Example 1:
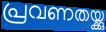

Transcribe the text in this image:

പ്രവണതയ്ക്കു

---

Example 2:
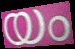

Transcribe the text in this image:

യം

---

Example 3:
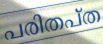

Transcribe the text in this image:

പരിതപ്ത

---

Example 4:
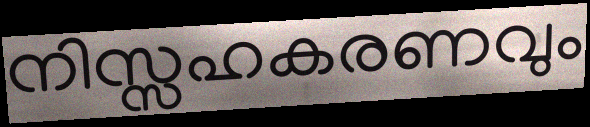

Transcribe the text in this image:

നിസ്സഹകരണവും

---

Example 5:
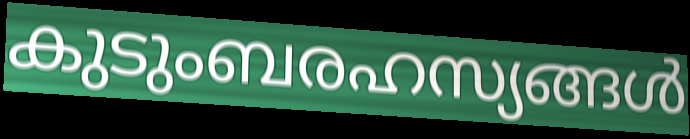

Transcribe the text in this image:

കുടുംബരഹസ്യങ്ങൾ